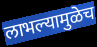
लाभल्यामुळेच